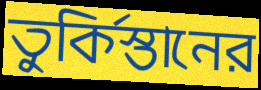
তুর্কিস্তানের